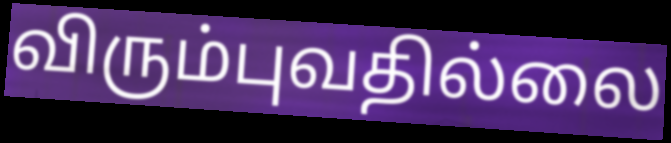
விரும்புவதில்லை